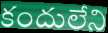
కందులేని